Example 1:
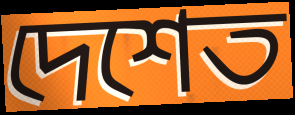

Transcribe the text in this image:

দেশেত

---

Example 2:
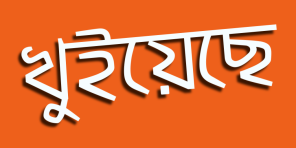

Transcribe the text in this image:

খুইয়েছে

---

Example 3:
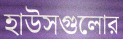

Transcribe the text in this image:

হাউসগুলোর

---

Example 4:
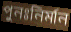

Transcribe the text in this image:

পুনঃনির্মান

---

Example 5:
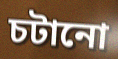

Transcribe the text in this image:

চটানো